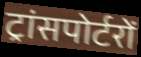
ट्रांसपोर्टरों